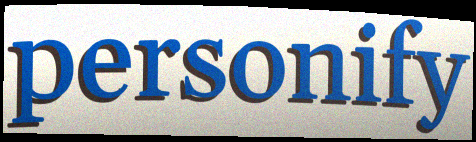
personify